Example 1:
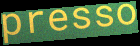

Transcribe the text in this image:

presso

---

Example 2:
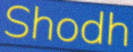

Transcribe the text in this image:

Shodh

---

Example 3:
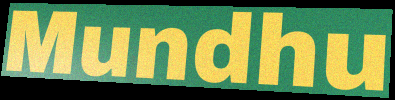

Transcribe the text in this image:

Mundhu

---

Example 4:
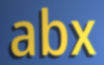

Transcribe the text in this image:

abx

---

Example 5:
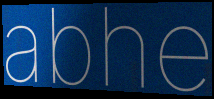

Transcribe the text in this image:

abhe